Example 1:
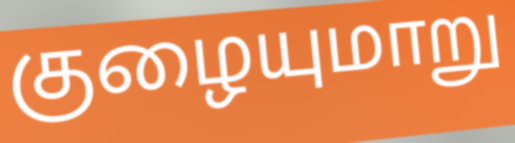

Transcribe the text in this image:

குழையுமாறு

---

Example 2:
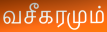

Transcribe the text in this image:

வசீகரமும்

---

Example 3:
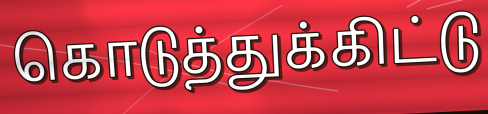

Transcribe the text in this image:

கொடுத்துக்கிட்டு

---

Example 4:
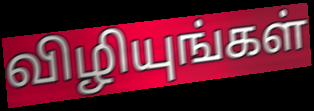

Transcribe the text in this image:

விழியுங்கள்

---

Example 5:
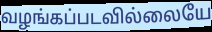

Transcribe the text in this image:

வழங்கப்படவில்லையே